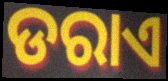
ଡରାଏ